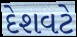
દેશવટે